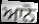
ਆਨੋ